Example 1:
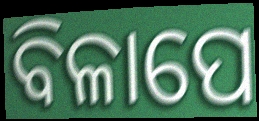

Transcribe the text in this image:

ବିଳାପେ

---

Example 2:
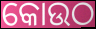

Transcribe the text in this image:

କୋଉଠ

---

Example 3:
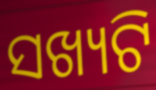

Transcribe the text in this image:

ସଖ୍ୟଟି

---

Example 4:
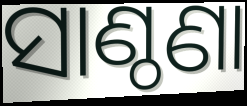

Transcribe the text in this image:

ସାଣ୍ଠଣା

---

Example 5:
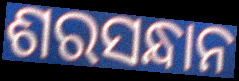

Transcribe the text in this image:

ଶରସନ୍ଧାନ